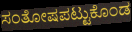
ಸಂತೋಷಪಟ್ಟುಕೊಂಡ